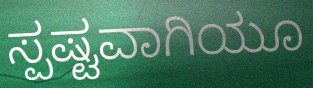
ಸ್ಪಷ್ಟವಾಗಿಯೂ